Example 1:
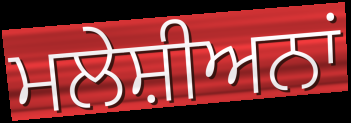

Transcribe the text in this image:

ਮਲੇਸ਼ੀਅਨਾਂ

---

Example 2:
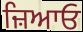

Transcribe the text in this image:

ਜ਼ਿਆਓ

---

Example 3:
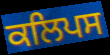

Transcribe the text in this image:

ਕਲਿਪਸ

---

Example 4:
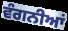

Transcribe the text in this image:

ਵੰਗਨੀਆਂ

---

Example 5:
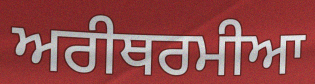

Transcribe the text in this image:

ਅਰੀਥਰਮੀਆ